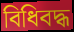
বিধিবদ্ধ